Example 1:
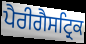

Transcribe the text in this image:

ਪੈਰੀਗੈਸਟ੍ਰਿਕ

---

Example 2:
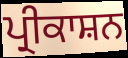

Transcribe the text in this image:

ਪ੍ਰੀਕਾਸ਼ਨ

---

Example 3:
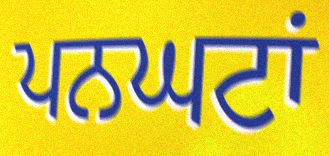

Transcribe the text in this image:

ਪਨਘਟਾਂ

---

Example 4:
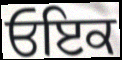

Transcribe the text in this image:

ਓਇਕ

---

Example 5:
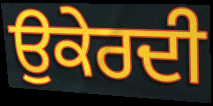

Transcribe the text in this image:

ਉਕੇਰਦੀ